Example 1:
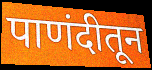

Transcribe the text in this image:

पाणंदीतून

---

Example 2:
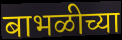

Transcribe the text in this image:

बाभळीच्या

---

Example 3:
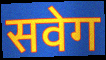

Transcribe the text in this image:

सवेग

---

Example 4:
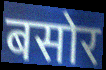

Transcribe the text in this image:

बसोर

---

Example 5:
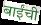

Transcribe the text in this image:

बाईंची